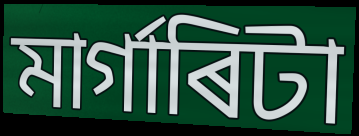
মাৰ্গাৰিটা